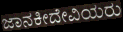
ಜಾನಕೀದೇವಿಯರು